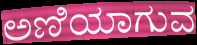
ಅಣಿಯಾಗುವ